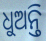
ଧୁଅନ୍ତି